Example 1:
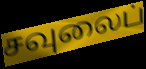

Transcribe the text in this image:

சவுலைப்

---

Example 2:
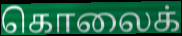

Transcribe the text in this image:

கொலைக்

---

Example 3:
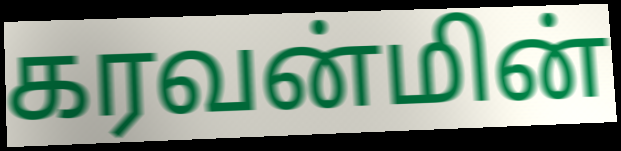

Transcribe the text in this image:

கரவன்மின்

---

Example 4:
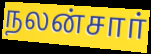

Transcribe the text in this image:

நலன்சார்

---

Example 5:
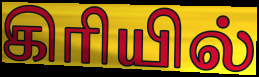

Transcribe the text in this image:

கிரியில்